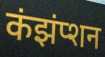
कंझंप्शन